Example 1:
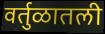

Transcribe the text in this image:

वर्तुळातली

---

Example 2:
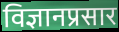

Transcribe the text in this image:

विज्ञानप्रसार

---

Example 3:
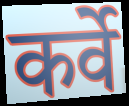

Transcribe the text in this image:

कर्वे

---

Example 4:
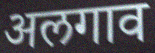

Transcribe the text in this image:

अलगाव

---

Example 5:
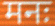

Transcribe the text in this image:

मनः